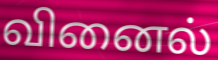
வினைல்